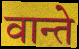
वान्ते